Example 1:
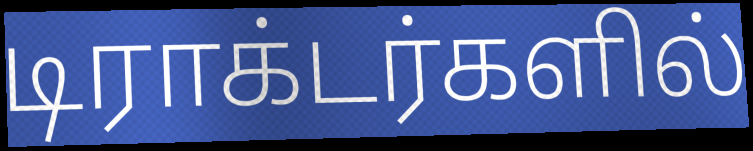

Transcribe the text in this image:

டிராக்டர்களில்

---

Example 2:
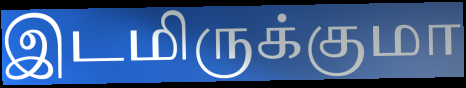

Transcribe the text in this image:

இடமிருக்குமா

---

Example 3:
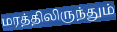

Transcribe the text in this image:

மரத்திலிருந்தும்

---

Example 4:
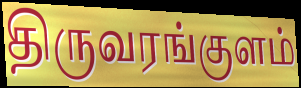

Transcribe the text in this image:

திருவரங்குளம்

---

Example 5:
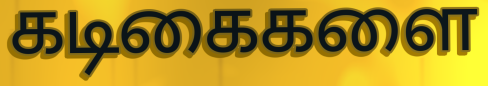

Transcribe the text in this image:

கடிகைகளை